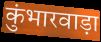
कुंभारवाड़ा